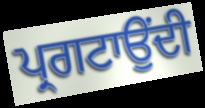
ਪ੍ਰਗਟਾਉਂਦੀ